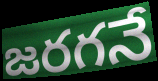
జరగనే